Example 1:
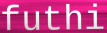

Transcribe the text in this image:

futhi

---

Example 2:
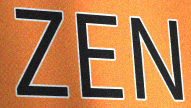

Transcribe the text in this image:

ZEN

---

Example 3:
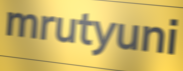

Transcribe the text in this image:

mrutyuni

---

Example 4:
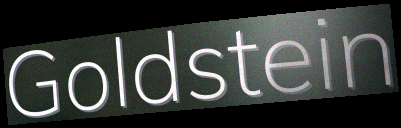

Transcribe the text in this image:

Goldstein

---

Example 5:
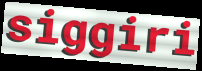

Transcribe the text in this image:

siggiri